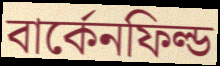
বার্কেনফিল্ড